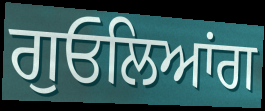
ਗੁਓਲਿਆਂਗ